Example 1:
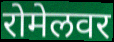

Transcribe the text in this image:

रोमेलवर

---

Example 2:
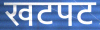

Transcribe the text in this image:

खटपट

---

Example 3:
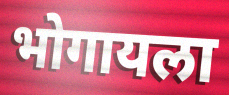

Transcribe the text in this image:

भोगायला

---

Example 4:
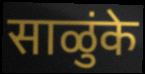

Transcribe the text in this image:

साळुंके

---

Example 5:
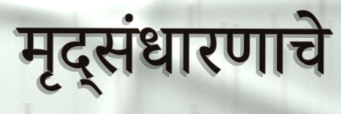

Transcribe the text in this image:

मृद्संधारणाचे